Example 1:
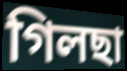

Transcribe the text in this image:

গিলছা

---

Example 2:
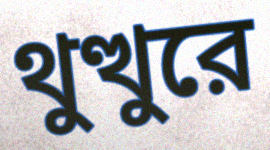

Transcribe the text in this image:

থুত্থুরে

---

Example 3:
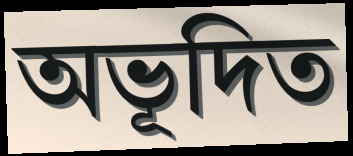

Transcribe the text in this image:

অভূদিত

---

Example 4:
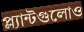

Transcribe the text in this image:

প্ল্যান্টগুলোও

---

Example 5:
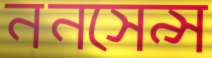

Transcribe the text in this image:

ননসেন্স